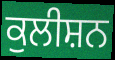
ਕੁਲੀਸ਼ਨ